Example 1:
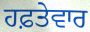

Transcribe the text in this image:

ਹਫ਼ਤੇਵਾਰ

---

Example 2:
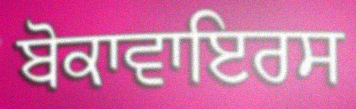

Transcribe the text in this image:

ਬੋਕਾਵਾਇਰਸ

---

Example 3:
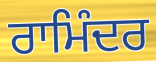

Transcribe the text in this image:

ਰਾਮਿੰਦਰ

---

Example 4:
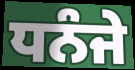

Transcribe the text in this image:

ਧਨੰਜੇ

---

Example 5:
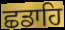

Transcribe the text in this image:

ਛਡਾਹਿ